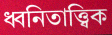
ধ্বনিতাত্ত্বিক